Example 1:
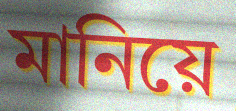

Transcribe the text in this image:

মানিয়ে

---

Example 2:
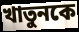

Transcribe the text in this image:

খাতুনকে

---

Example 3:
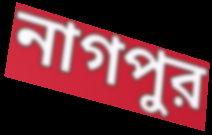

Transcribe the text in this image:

নাগপুর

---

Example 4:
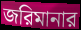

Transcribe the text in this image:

জরিমানার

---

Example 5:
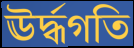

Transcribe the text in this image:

ঊর্দ্ধগতি